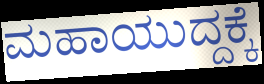
ಮಹಾಯುದ್ದಕ್ಕೆ